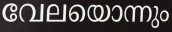
വേലയൊന്നും